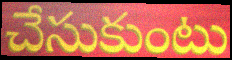
చేసుకుంటు